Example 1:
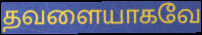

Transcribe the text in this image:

தவளையாகவே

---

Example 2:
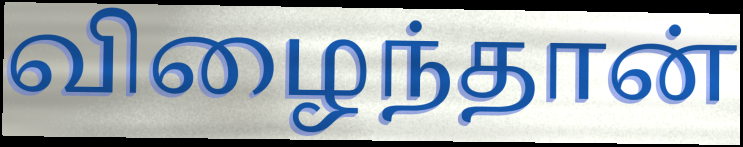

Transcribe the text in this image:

விழைந்தான்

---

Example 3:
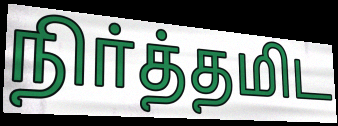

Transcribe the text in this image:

நிர்த்தமிட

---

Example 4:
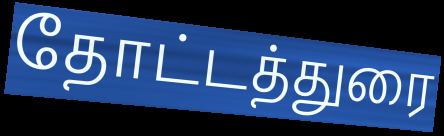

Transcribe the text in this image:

தோட்டத்துரை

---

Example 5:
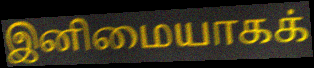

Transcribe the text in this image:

இனிமையாகக்